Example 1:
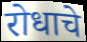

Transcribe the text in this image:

रोधाचे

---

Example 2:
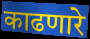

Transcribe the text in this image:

काढणारे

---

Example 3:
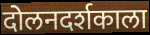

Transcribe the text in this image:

दोलनदर्शकाला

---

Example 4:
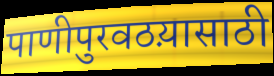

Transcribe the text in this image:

पाणीपुरवठय़ासाठी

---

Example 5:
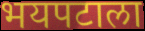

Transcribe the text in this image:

भयपटाला